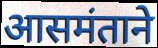
आसमंताने